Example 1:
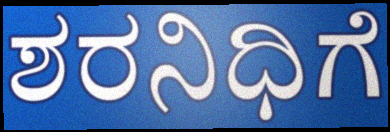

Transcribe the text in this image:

ಶರನಿಧಿಗೆ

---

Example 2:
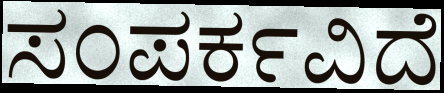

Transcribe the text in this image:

ಸಂಪರ್ಕವಿದೆ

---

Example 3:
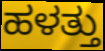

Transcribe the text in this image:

ಹಳತ್ತು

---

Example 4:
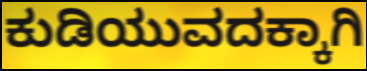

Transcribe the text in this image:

ಕುಡಿಯುವದಕ್ಕಾಗಿ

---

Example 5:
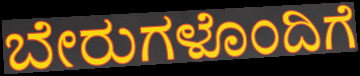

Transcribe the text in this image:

ಬೇರುಗಳೊಂದಿಗೆ